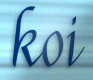
koi